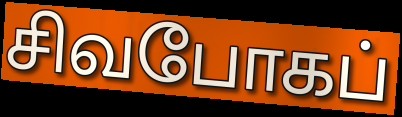
சிவபோகப்